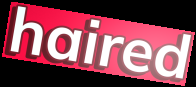
haired